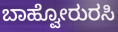
ಬಾಹ್ವೋರುರಸಿ